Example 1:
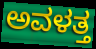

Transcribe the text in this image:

ಅವಳತ್ತ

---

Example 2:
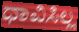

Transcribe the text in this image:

ಧಾವಿಸಿಲ್ಲ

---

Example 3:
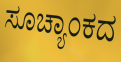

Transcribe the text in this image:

ಸೂಚ್ಯಾಂಕದ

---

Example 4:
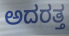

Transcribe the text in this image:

ಅದರತ್ತ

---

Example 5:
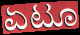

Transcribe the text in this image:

ಏಟೂ